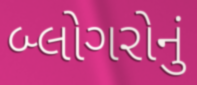
બ્લોગરોનું